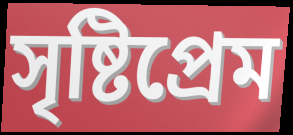
সৃষ্টিপ্রেম